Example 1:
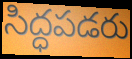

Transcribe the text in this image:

సిద్ధపడరు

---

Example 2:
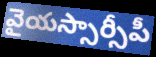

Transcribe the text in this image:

వైయస్సార్సీపీ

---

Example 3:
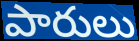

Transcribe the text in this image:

పారులు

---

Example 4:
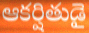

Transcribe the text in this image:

ఆకర్షితుడై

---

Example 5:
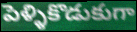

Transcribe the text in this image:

పెళ్ళికొడుకుగా